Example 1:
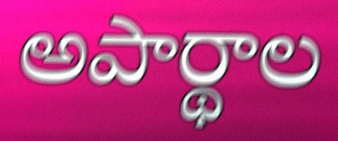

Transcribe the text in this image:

అపార్థాల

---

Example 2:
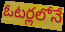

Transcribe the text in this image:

ఓటర్లలోనే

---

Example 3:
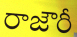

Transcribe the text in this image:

రాజౌరీ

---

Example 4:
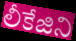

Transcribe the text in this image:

లీకేజిని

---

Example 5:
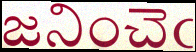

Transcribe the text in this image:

జనించెఁ